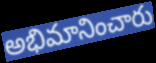
అభిమానించారు